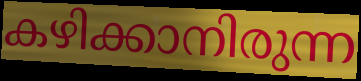
കഴിക്കാനിരുന്ന